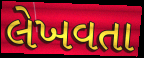
લેખવતા